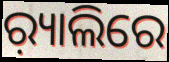
ର଼୍ୟାଲିରେ